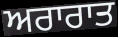
ਅਰਾਰਾਤ